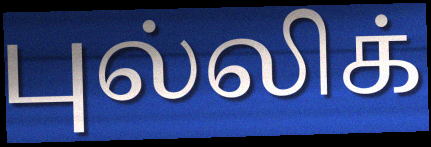
புல்லிக்